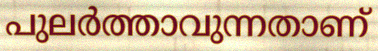
പുലർത്താവുന്നതാണ്